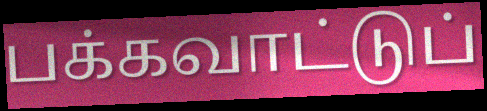
பக்கவாட்டுப்